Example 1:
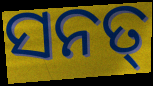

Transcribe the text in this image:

ସନତ୍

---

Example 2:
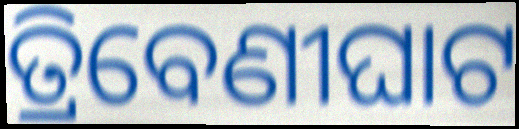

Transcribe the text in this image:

ତ୍ରିବେଣୀଘାଟ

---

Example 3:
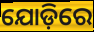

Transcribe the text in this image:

ଯୋଡ଼ିରେ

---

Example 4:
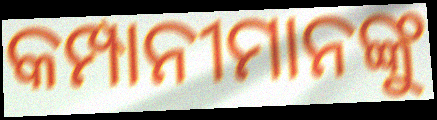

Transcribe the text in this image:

କମ୍ପାନୀମାନଙ୍କୁ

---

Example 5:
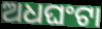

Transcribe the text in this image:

ଅଧଘଂଟା